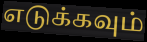
எடுக்கவும்